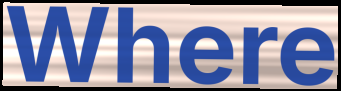
Where